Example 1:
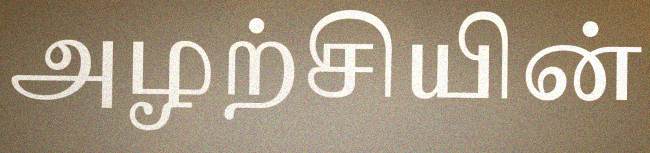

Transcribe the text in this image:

அழற்சியின்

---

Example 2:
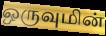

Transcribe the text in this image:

ஒருவுமின்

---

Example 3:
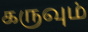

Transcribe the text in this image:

கருவும்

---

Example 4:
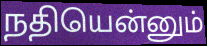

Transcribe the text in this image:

நதியென்னும்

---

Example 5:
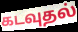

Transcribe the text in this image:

கடவுதல்